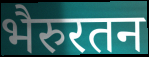
भैरुरतन